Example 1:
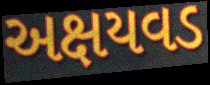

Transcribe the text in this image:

અક્ષયવડ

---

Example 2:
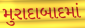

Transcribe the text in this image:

મુરાદાબાદમાં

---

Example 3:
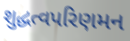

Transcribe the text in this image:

શુદ્ધત્વપરિણમન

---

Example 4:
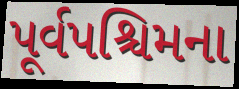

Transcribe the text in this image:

પૂર્વપશ્ચિમના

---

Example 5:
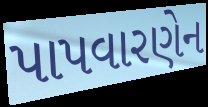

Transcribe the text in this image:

પાપવારણેન